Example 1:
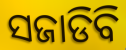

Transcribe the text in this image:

ସଜାଡିବି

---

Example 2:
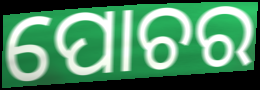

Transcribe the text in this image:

ପୋଚର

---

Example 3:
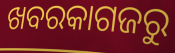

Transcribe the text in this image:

ଖବରକାଗଜରୁ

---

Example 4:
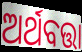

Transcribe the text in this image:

ଅର୍ଥବତ୍ତା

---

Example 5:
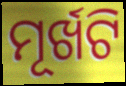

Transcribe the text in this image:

ମୂର୍ଖଟି